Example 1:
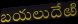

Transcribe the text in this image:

బయలుదేఱి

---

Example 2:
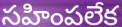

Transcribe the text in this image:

సహింపలేక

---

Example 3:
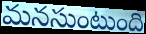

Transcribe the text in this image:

మనసుంటుంది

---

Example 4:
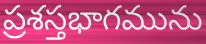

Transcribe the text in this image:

ప్రశస్తభాగమును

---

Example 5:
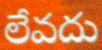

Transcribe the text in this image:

లేవదు